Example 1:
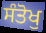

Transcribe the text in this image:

ਸੰਤੋਖੁ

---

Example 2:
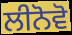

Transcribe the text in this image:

ਲੀਨੋਵੋ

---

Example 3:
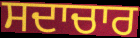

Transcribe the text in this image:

ਸਦਾਚਾਰ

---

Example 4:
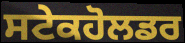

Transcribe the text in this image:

ਸਟੇਕਹੋਲਡਰ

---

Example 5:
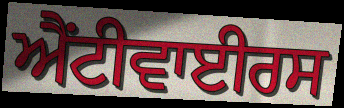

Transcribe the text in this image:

ਐਂਟੀਵਾਈਰਸ